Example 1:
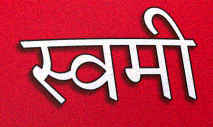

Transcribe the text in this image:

स्वमी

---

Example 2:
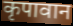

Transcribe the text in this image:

कृपावान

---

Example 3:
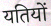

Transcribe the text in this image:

यतियों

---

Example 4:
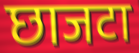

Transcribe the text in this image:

छाजटा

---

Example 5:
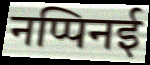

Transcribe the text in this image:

नप्पिनई